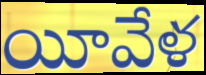
యీవేళ